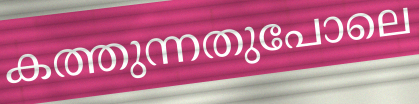
കത്തുന്നതുപോലെ